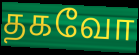
தகவோ